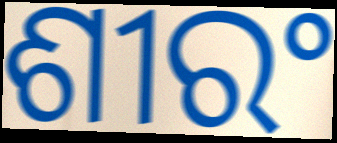
ଶୀରଂ